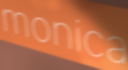
monica